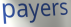
payers